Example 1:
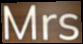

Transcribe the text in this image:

Mrs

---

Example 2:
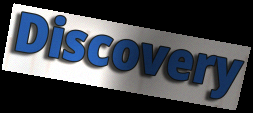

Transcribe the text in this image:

Discovery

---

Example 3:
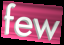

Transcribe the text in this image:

few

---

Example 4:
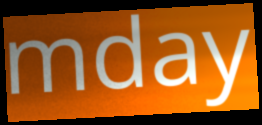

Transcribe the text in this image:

mday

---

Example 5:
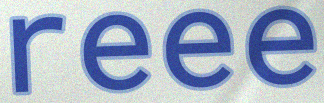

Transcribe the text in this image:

reee